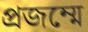
প্রজম্মে